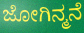
ಜೋಗಿನ್ಮನೆ